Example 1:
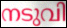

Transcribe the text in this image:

നടുവി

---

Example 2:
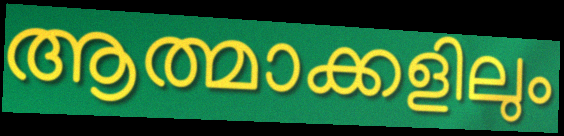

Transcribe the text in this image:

ആത്മാക്കളിലും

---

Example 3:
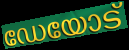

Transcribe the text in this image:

ഡേയോട്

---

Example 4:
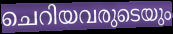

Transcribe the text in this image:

ചെറിയവരുടെയും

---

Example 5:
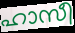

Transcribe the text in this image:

ഹാസീ